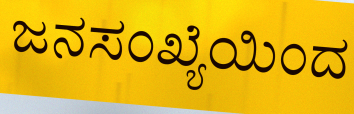
ಜನಸಂಖ್ಯೆಯಿಂದ